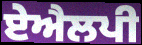
ਏਐਲਪੀ